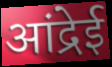
आंद्रेई